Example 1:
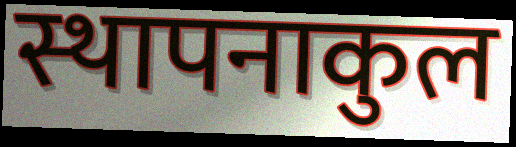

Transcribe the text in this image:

स्थापनाकुल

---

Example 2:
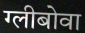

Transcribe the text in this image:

ग्लीबोवा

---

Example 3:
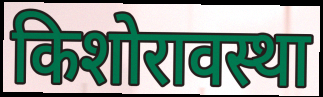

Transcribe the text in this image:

किशोरावस्था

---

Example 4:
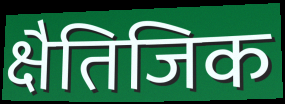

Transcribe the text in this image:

क्षैतिजिक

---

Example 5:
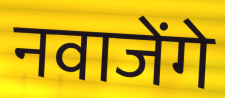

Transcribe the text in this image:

नवाजेंगे